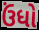
ઉંધો